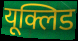
यूक्लिड